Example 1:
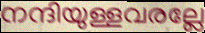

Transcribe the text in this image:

നന്ദിയുള്ളവരല്ലേ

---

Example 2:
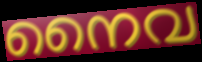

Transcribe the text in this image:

നൈവ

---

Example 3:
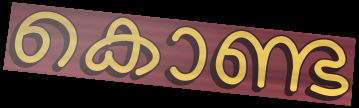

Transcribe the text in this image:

കൊണ്ട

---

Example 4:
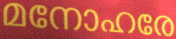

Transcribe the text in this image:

മനോഹരേ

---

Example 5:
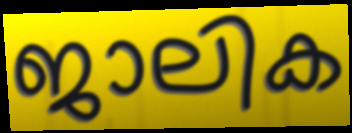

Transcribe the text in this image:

ജാലിക